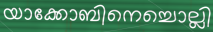
യാക്കോബിനെച്ചൊല്ലി